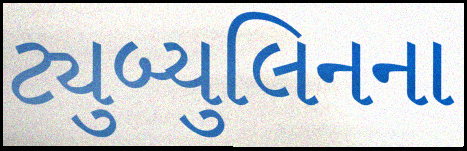
ટ્યુબ્યુલિનના